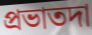
প্রভাতদা